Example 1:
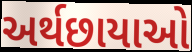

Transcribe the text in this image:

અર્થછાયાઓ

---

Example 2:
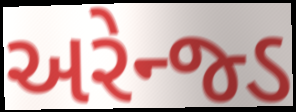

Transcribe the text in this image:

અરેન્જ્ડ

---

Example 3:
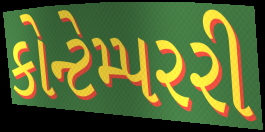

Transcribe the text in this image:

કોન્ટેમ્પરરી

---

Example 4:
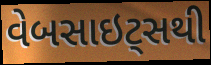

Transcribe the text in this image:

વેબસાઇટ્સથી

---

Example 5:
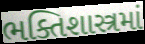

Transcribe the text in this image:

ભક્તિશાસ્ત્રમાં